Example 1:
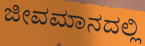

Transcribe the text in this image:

ಜೀವಮಾನದಲ್ಲಿ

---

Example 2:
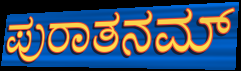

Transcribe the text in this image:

ಪುರಾತನಮ್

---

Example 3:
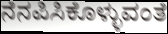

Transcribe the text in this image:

ನೆನಪಿಸಿಕೊಳ್ಳುವಂತೆ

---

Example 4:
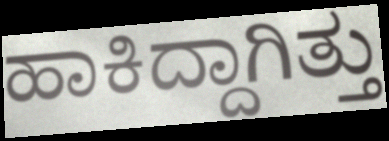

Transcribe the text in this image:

ಹಾಕಿದ್ದಾಗಿತ್ತು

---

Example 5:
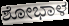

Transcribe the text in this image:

ಶೋಭಾಳ